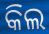
କିଲ